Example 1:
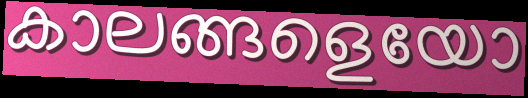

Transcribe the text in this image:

കാലങ്ങളെയോ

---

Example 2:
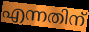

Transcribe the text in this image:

എന്നതിന്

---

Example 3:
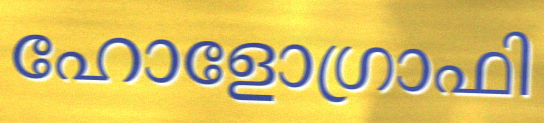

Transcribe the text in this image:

ഹോളോഗ്രാഫി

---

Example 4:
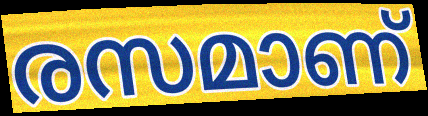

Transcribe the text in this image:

രസമാണ്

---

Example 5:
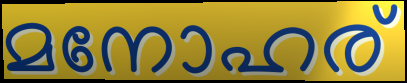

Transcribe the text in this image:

മനോഹര്